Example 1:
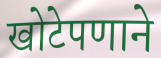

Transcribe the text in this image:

खोटेपणाने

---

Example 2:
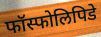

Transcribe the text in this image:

फॉस्फोलिपिडे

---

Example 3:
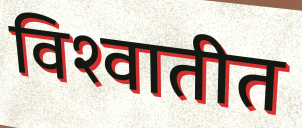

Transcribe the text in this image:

विश्वातीत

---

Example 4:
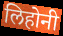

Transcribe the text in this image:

लिहोनी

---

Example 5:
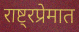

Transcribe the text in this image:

राष्ट्रप्रेमात